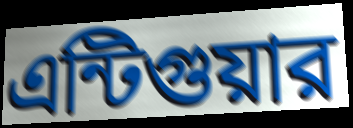
এন্টিগুয়ার